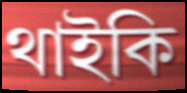
থাইকি